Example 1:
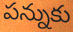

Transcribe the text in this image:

పన్నుకు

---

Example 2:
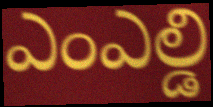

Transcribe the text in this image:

ఎంఎల్డి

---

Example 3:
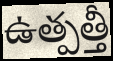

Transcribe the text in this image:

ఉత్పత్తీ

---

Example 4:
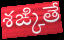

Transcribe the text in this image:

శఙ్కితే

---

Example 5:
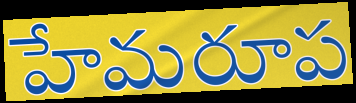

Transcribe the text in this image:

హేమరూప